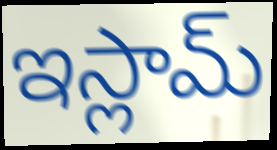
ఇస్లామ్